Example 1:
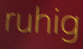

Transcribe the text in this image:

ruhig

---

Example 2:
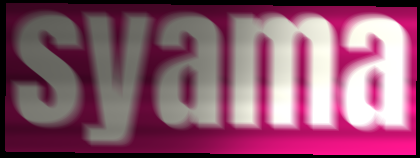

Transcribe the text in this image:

syama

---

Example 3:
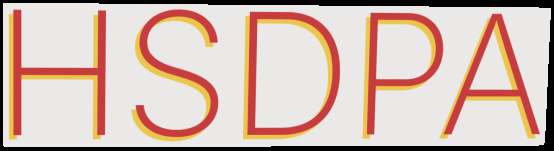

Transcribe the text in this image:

HSDPA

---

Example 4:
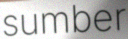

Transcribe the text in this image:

sumber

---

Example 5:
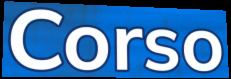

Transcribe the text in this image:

Corso